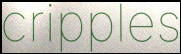
cripples